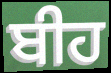
ਬੀਹ